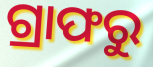
ଗ୍ରାଫରୁ